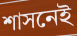
শাসনেই